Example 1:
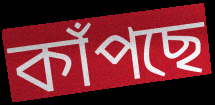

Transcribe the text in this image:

কাঁপছে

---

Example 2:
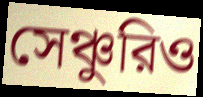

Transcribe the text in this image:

সেঞ্চুরিও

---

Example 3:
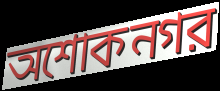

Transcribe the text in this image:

অশোকনগর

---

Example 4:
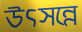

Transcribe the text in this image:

উৎসন্নে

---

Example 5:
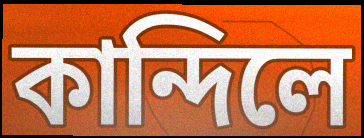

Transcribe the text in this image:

কান্দিলে